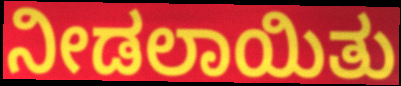
ನೀಡಲಾಯಿತು